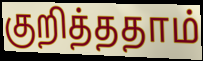
குறித்ததாம்